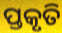
ପ୍ତକୃତି